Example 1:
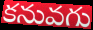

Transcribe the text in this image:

కనువగు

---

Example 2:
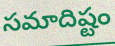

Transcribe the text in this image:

సమాదిష్టం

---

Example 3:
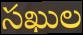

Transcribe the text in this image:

సఖుల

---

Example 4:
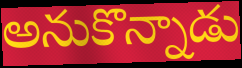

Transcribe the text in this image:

అనుకొన్నాడు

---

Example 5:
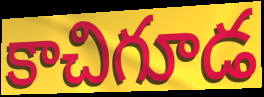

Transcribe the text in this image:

కాచిగూడ